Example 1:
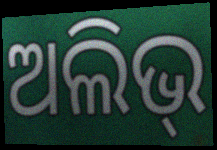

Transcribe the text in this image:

ଅଲିଭ୍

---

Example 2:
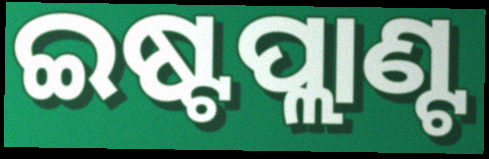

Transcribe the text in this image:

ଇଷ୍ଟପ୍ଲାଣ୍ଟ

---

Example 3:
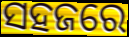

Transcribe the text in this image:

ସହଜରେ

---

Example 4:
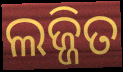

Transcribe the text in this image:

ଲଜ୍ଜିତ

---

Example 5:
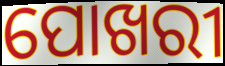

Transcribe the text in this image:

ପୋଖରୀ